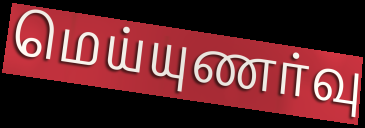
மெய்யுணர்வு